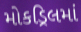
મોકડ્રિલમાં